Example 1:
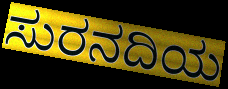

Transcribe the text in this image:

ಸುರನದಿಯ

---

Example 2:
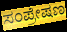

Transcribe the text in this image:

ಸಂಪ್ರೇಷಣ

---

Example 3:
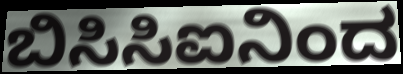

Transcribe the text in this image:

ಬಿಸಿಸಿಐನಿಂದ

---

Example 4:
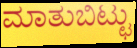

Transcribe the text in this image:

ಮಾತುಬಿಟ್ಟು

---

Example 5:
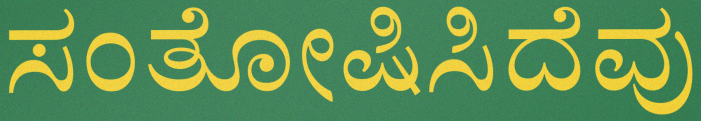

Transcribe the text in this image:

ಸಂತೋಷಿಸಿದೆವು